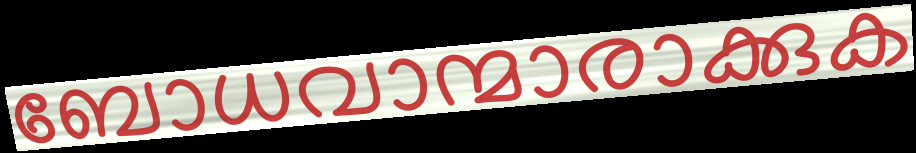
ബോധവാന്മാരാക്കുക